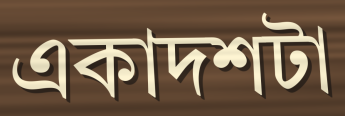
একাদশটা